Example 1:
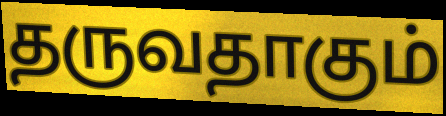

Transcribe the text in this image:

தருவதாகும்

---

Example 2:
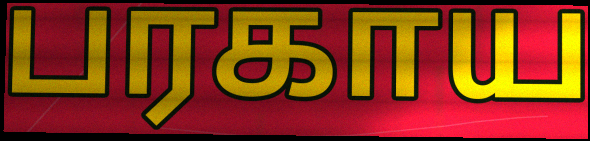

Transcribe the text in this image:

பரகாய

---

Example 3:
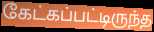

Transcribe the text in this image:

கேட்கப்பட்டிருந்த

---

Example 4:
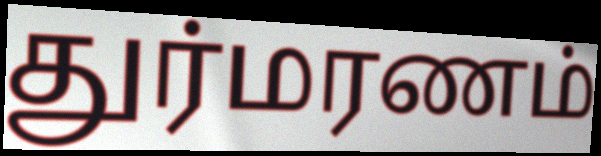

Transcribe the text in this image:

துர்மரணம்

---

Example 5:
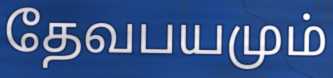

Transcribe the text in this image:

தேவபயமும்